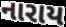
નારાય